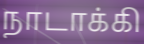
நாடாக்கி